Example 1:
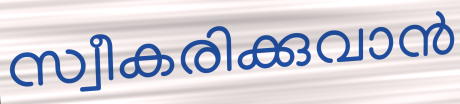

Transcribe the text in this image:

സ്വീകരിക്കുവാൻ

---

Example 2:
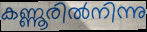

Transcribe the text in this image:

കണ്ണൂരിൽനിന്നു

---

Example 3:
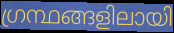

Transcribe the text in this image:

ഗ്രന്ഥങ്ങളിലായി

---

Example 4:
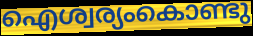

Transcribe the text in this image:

ഐശ്വര്യംകൊണ്ടു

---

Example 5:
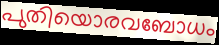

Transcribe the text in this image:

പുതിയൊരവബോധം